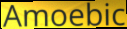
Amoebic